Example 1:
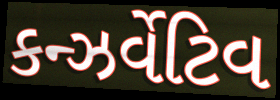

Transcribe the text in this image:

કન્ઝર્વેટિવ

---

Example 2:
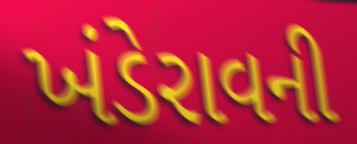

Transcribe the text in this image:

ખંડેરાવની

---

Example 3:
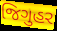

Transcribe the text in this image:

જિગુહર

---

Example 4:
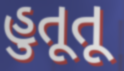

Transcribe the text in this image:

હુતૂતૂ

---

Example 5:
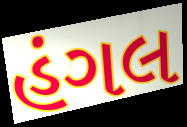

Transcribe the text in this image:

હંગલ